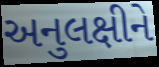
અનુલક્ષીને